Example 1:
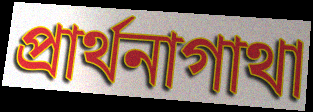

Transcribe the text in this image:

প্রার্থনাগাথা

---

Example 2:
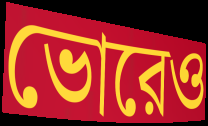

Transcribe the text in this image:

ভোরেও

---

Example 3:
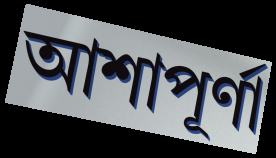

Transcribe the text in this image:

আশাপূর্ণা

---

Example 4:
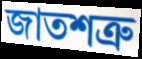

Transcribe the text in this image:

জাতশত্রু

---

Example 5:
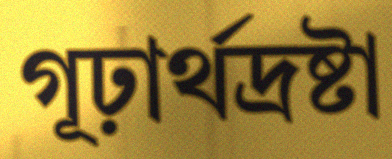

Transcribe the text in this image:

গূঢ়ার্থদ্রষ্টা